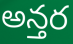
అన్తర